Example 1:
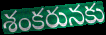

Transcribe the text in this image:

శంకరునకు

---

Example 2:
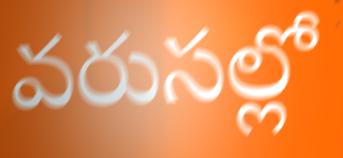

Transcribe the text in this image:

వరుసల్లో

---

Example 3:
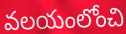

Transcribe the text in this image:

వలయంలోంచి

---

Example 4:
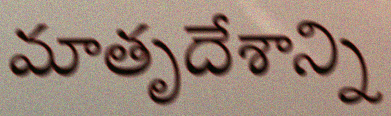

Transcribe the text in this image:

మాతృదేశాన్ని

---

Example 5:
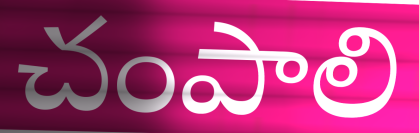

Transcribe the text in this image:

చంపాలి